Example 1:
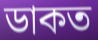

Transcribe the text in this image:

ডাকত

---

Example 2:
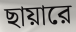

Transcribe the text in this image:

ছায়ারে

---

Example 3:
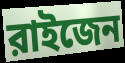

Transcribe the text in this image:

রাইজেন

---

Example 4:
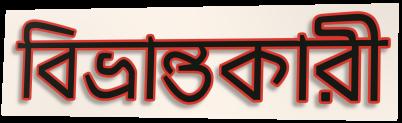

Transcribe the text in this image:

বিভ্রান্তকারী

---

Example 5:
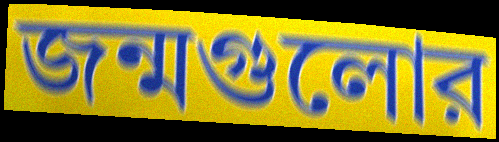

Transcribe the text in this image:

জন্মগুলোর